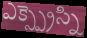
ఎక్స్ప్రెస్ని